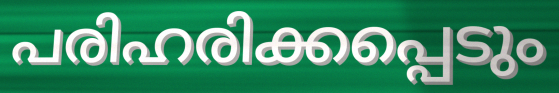
പരിഹരിക്കപ്പെടും